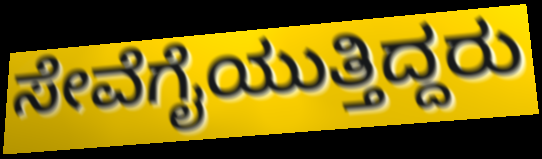
ಸೇವೆಗೈಯುತ್ತಿದ್ದರು